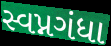
સ્વપ્નગંધા